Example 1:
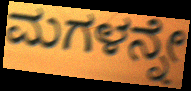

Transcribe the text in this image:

ಮಗಳನ್ನೇ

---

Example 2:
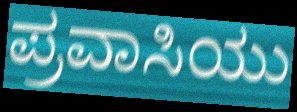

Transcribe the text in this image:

ಪ್ರವಾಸಿಯು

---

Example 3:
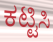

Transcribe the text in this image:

ಕಟ್ಟಿಸಿ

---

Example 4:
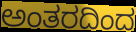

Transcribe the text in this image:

ಅಂತರದಿಂದ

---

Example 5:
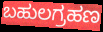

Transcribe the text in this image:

ಬಹುಲಗ್ರಹಣ